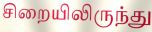
சிறையிலிருந்து